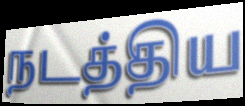
நடத்திய